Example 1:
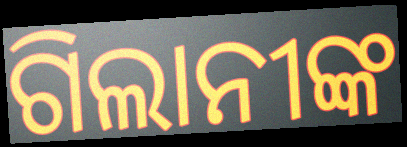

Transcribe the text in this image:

ଗିଲାନୀଙ୍କ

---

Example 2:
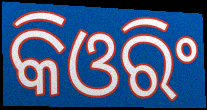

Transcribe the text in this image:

କିଓରିଂ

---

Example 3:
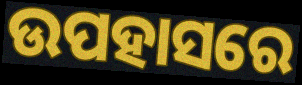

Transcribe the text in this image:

ଉପହାସରେ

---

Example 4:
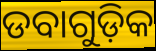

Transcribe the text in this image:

ଡବାଗୁଡ଼ିକ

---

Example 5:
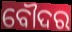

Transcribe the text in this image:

ବୌଦର